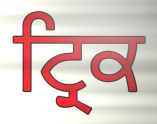
ਟ੍ਰਿਕ